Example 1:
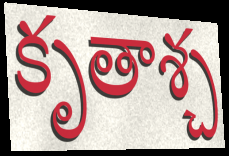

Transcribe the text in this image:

కృతాశ్చ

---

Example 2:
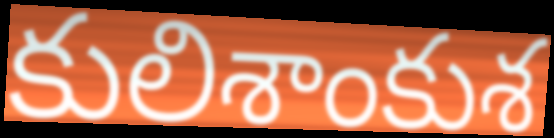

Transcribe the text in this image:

కులిశాంకుశ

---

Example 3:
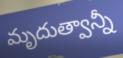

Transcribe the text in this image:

మృదుత్వాన్నీ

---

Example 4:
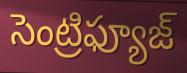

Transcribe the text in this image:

సెంట్రిఫ్యూజ్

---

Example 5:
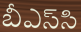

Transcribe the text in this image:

బీఎస్‌సి